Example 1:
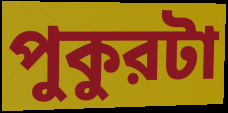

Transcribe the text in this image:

পুকুরটা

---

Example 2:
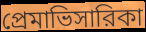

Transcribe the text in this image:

প্রেমাভিসারিকা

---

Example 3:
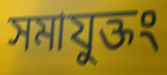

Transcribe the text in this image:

সমাযুক্তং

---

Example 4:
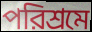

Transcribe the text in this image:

পরিশ্রমে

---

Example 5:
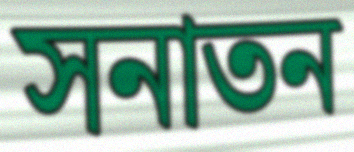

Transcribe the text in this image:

সনাতন